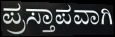
ಪ್ರಸ್ತಾಪವಾಗಿ